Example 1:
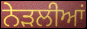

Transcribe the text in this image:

ਨੇੜਲੀਆਂ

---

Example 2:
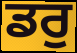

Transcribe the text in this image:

ਡਰੁ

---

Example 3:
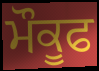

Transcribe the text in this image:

ਮੌਕੂਫ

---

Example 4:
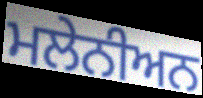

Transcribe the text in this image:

ਮਲੇਨੀਅਨ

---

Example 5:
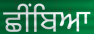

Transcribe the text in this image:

ਛੀਂਬਿਆ